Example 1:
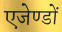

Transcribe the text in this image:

एजेण्डों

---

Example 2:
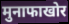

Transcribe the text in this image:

मुनाफाखोर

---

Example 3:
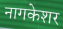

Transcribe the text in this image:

नागकेशर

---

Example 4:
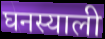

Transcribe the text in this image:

घनस्याली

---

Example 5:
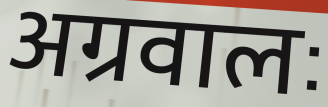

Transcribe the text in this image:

अग्रवालः